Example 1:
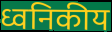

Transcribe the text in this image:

ध्वनिकीय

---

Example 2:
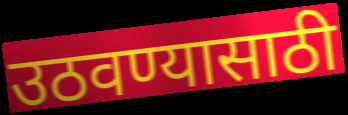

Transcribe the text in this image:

उठवण्यासाठी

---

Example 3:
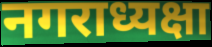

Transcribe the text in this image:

नगराध्यक्षा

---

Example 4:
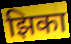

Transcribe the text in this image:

झिका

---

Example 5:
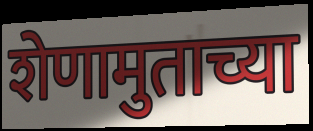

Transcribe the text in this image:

शेणामुताच्या